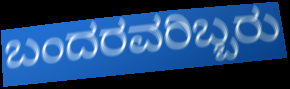
ಬಂದರವರಿಬ್ಬರು